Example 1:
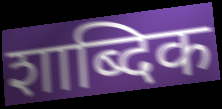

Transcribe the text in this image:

शाब्दिक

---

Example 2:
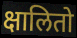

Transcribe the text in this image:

क्षालितो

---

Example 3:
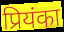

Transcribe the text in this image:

प्रियंका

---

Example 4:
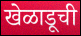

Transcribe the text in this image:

खेळाडूची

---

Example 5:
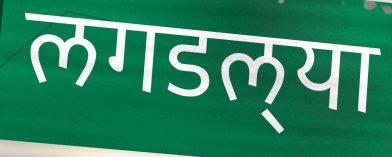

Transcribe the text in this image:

लगडल्या